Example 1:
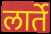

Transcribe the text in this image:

लार्ते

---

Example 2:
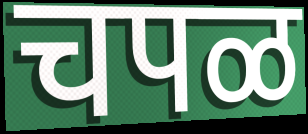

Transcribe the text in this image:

चपळ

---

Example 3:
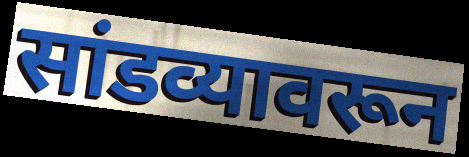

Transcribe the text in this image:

सांडव्यावरून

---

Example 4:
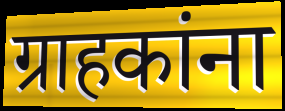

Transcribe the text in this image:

ग्राहकांना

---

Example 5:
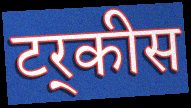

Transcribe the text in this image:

टर्कीस